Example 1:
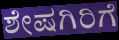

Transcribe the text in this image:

ಶೇಷಗಿರಿಗೆ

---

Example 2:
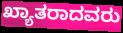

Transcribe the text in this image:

ಖ್ಯಾತರಾದವರು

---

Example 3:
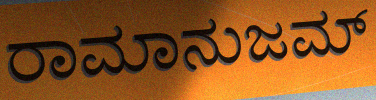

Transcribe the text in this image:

ರಾಮಾನುಜಮ್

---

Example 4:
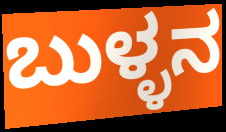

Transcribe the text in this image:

ಬುಳ್ಳನ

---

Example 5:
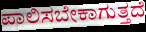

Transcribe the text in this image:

ಪಾಲಿಸಬೇಕಾಗುತ್ತದೆ